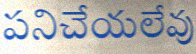
పనిచేయలేవు